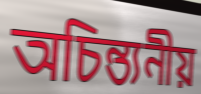
অচিন্ত্যনীয়